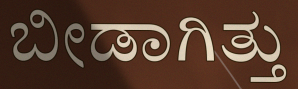
ಬೀಡಾಗಿತ್ತು